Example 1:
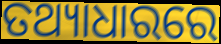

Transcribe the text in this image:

ତଥ୍ୟାଧାରରେ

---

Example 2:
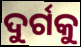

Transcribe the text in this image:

ଦୁର୍ଗକୁ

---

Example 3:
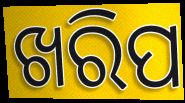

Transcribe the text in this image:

ଖରିପ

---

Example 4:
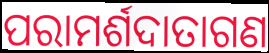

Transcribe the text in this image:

ପରାମର୍ଶଦାତାଗଣ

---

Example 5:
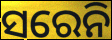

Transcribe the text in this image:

ସରେନି